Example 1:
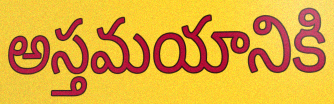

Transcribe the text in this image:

అస్తమయానికి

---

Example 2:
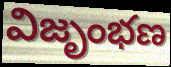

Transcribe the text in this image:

విజృంభణ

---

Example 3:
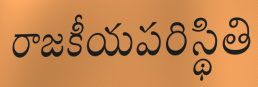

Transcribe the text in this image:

రాజకీయపరిస్థితి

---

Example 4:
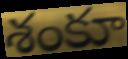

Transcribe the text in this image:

శంకూ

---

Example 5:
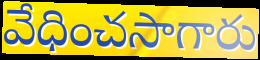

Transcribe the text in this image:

వేధించసాగారు